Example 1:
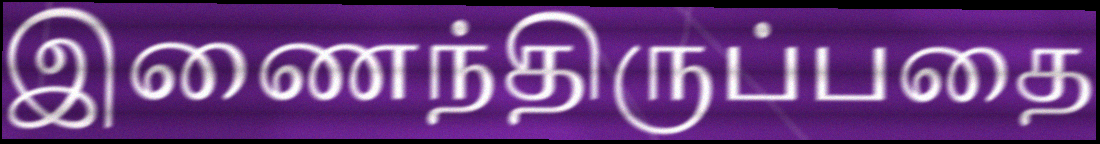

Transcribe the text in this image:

இணைந்திருப்பதை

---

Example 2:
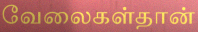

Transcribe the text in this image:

வேலைகள்தான்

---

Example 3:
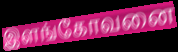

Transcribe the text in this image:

இளங்கோவனை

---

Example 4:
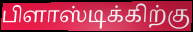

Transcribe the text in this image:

பிளாஸ்டிக்கிற்கு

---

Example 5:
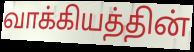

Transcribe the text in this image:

வாக்கியத்தின்